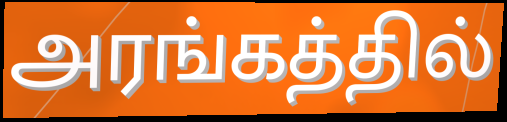
அரங்கத்தில்